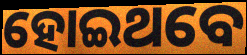
ହୋଇଥବେ